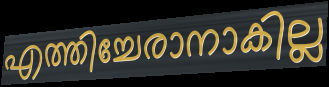
എത്തിച്ചേരാനാകില്ല